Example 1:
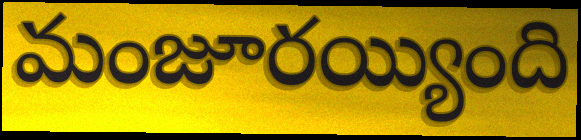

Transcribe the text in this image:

మంజూరయ్యింది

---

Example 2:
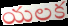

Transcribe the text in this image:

యలక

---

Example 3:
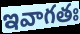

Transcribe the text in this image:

ఇవాగతః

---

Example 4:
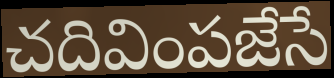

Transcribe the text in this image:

చదివింపజేసే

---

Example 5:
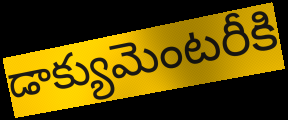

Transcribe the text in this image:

డాక్యుమెంటరీకి